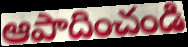
ఆపాదించండి